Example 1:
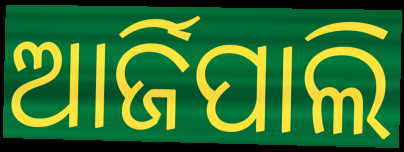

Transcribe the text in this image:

ଆର୍ଜିପାଲି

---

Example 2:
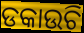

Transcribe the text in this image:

ଡକାଉଚି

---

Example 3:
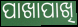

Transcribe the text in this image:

ପାଖାପାଖି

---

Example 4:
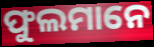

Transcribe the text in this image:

ଫୁଲମାନେ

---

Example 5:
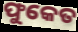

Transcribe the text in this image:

ଫୁକେତ